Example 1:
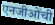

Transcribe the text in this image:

एनजीओंची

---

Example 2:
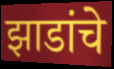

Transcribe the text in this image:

झाडांचे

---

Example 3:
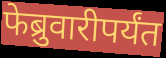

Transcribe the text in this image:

फेब्रुवारीपर्यंत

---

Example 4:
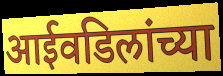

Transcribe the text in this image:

आईवडिलांच्या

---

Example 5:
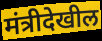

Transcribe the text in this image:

मंत्रीदेखील